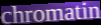
chromatin